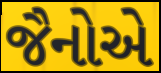
જૈનોએ